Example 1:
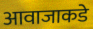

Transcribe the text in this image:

आवाजाकडे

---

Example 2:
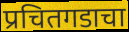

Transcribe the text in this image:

प्रचितगडाचा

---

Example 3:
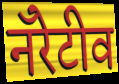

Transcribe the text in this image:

नॅरेटीव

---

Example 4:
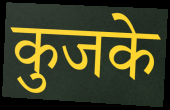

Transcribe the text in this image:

कुजके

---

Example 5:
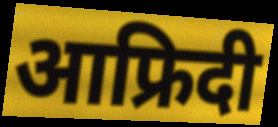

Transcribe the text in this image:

आफ्रिदी